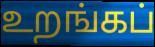
உறங்கப்